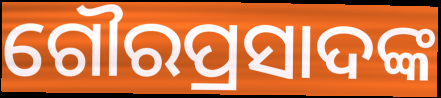
ଗୌରପ୍ରସାଦଙ୍କ